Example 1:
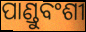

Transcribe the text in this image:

ପାଣ୍ଡୁବଂଶୀ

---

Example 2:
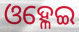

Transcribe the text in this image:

ଓହ୍ଳେଇ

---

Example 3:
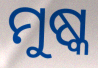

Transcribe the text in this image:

ମୁଷ୍କ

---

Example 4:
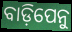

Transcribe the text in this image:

ବାଡ଼ିପେନୁ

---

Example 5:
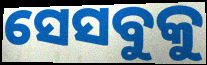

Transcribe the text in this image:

ସେସବୁକୁ